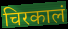
चिरकालं